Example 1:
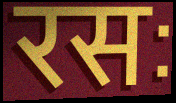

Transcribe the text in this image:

रसः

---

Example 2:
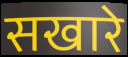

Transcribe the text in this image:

सखारे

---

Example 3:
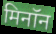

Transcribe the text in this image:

मिनॉन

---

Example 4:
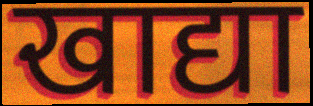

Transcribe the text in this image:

खाद्या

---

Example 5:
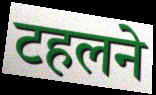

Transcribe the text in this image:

टहलने